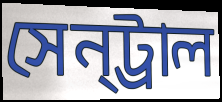
সেন্‌ট্রাল